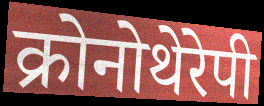
क्रोनोथेरेपी